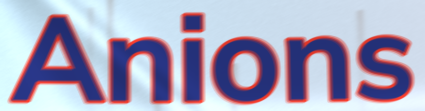
Anions